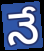
నే